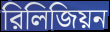
রিলিজিয়ন